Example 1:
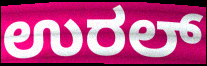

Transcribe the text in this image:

ಉರಲ್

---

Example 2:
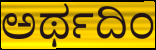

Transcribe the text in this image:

ಅರ್ಥದಿಂ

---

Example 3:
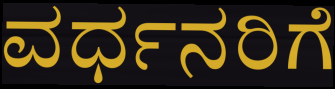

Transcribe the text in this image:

ವರ್ಧನರಿಗೆ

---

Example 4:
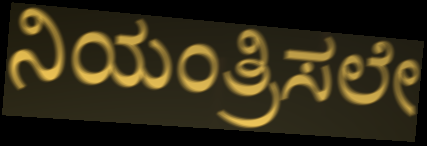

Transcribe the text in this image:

ನಿಯಂತ್ರಿಸಲೇ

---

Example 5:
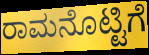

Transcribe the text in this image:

ರಾಮನೊಟ್ಟಿಗೆ